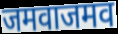
जमवाजमव